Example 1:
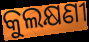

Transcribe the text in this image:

କୁଲକ୍ଷଣୀ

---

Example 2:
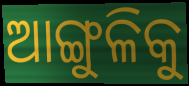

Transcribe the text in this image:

ଆଙ୍ଗୁଳିକୁ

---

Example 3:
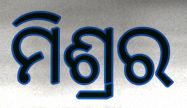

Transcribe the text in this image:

ମିଶ୍ରର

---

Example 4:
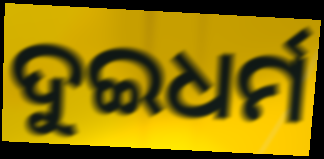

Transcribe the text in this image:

ଦୁଇଧର୍ମ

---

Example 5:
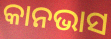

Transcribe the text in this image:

କାନଭାସ